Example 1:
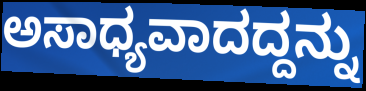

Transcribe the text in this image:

ಅಸಾಧ್ಯವಾದದ್ದನ್ನು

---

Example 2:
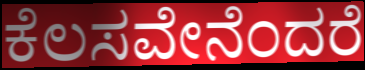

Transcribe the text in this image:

ಕೆಲಸವೇನೆಂದರೆ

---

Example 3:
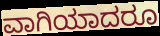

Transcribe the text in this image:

ವಾಗಿಯಾದರೂ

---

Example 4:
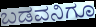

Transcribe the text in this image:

ಬಡವನಿಗೂ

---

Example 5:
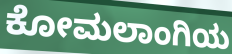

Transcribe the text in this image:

ಕೋಮಲಾಂಗಿಯ